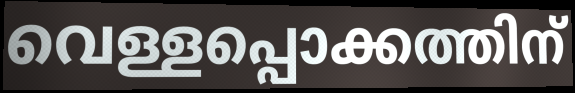
വെള്ളപ്പൊക്കത്തിന്